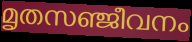
മൃതസഞ്ജീവനം